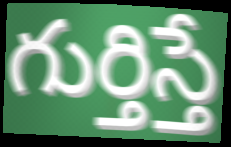
గుర్తిస్తే